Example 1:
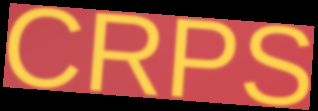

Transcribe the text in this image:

CRPS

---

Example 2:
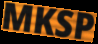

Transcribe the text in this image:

MKSP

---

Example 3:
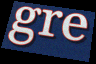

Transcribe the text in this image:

gre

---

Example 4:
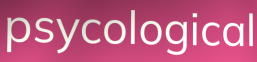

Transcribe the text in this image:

psycological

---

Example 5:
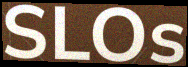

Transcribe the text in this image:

SLOs